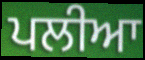
ਪਲੀਆ